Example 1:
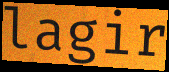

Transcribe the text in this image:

lagir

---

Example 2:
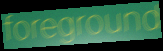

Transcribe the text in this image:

foreground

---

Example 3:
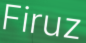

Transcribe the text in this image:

Firuz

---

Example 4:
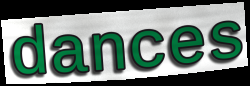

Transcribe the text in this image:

dances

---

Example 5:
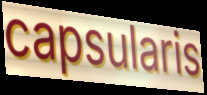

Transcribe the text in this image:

capsularis